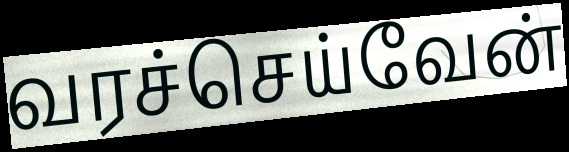
வரச்செய்வேன்